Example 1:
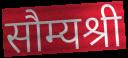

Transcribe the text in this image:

सौम्यश्री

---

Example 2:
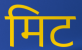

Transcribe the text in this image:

मिट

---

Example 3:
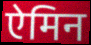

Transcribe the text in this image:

ऐमिन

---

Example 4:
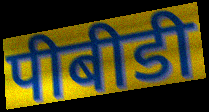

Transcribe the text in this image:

पीबीडी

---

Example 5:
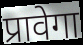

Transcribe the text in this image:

प्रावेगा